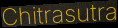
Chitrasutra